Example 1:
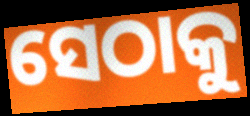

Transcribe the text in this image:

ସେଠାକୁ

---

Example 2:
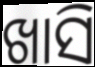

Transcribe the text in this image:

ଖାସି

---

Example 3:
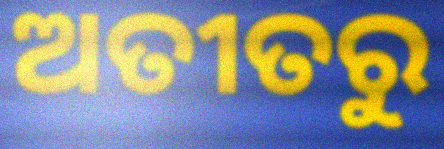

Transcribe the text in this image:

ଅତୀତରୁ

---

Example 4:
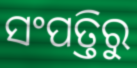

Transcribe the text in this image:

ସଂପତ୍ତିରୁ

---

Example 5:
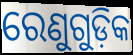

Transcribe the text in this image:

ରେଣୁଗୁଡ଼ିକ